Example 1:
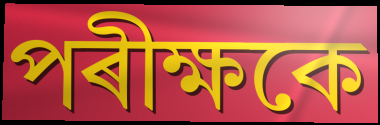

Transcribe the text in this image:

পৰীক্ষকে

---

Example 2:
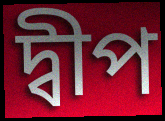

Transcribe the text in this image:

দ্বীপ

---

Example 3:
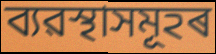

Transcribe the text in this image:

ব্যৱস্থাসমূহৰ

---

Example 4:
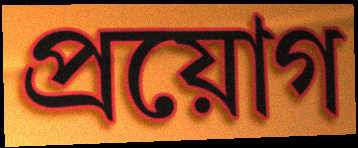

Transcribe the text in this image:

প্ৰয়োগ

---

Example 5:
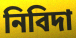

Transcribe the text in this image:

নিবিদা